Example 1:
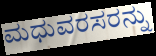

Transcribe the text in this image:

ಮಧುವರಸರನ್ನು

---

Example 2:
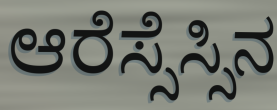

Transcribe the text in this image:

ಆರೆಸ್ಸೆಸ್ಸಿನ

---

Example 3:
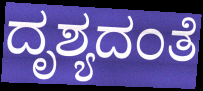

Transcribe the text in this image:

ದೃಶ್ಯದಂತೆ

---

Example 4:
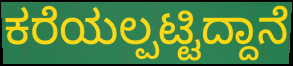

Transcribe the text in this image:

ಕರೆಯಲ್ಪಟ್ಟಿದ್ದಾನೆ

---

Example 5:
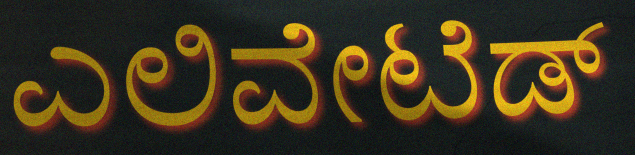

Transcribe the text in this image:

ಎಲಿವೇಟೆಡ್